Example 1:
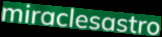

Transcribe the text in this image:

miraclesastro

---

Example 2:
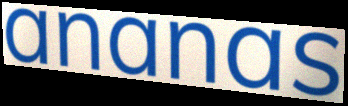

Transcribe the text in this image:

ananas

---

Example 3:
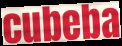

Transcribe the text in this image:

cubeba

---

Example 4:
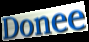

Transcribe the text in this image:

Donee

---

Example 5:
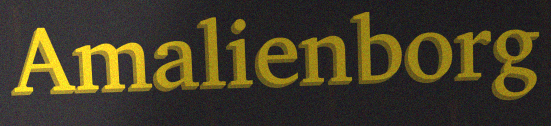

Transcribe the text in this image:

Amalienborg